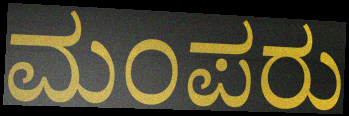
ಮಂಪರು